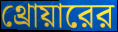
থ্রোয়ারের